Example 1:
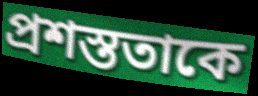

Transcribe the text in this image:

প্রশস্ততাকে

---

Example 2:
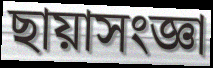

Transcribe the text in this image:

ছায়াসংজ্ঞা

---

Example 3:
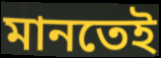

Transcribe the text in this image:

মানতেই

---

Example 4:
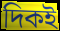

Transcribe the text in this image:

দিকই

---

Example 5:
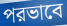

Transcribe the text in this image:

পরভাবে